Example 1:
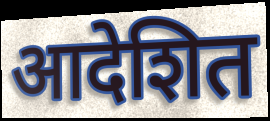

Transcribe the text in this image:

आदेशित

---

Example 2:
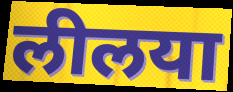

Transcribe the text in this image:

लीलया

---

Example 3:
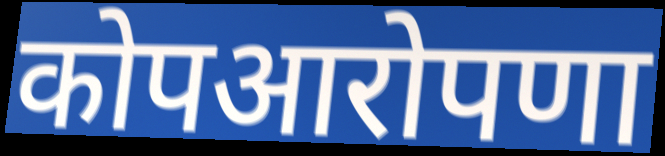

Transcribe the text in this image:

कोपआरोपणा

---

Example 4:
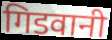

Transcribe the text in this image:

गिडवानी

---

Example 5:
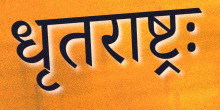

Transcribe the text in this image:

धृतराष्ट्रः